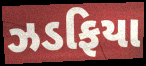
ઝડફિયા